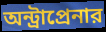
অন্ট্রাপ্রেনার